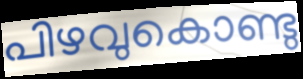
പിഴവുകൊണ്ടു